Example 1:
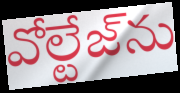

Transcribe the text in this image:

వోల్టేజ్‌ను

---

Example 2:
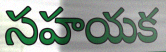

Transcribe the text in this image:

సహయక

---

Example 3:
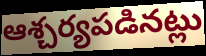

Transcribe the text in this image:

ఆశ్చర్యపడినట్లు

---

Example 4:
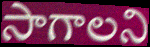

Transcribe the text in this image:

సాగాలని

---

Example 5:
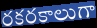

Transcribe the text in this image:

రకరకాలుగా